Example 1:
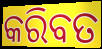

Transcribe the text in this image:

କରିବତ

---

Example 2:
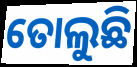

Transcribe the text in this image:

ତୋଲୁଛି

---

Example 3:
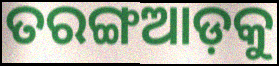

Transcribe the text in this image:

ତରଙ୍ଗଆଡ଼କୁ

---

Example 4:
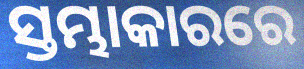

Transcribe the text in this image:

ସ୍ତମ୍ଭାକାରରେ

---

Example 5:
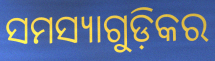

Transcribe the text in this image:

ସମସ୍ୟାଗୁଡ଼ିକର